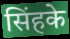
सिंहके